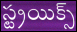
స్ట్రయిక్స్